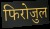
फिरोजुल